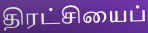
திரட்சியைப்